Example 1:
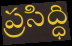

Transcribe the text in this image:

ప్రసిద్ధి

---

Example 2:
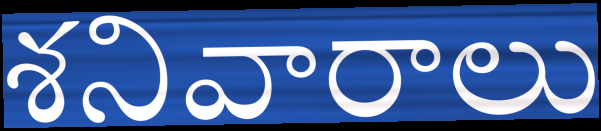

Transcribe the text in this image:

శనివారాలు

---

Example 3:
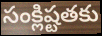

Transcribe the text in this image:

సంక్లిష్టతకు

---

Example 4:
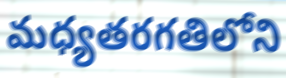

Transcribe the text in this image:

మధ్యతరగతిలోని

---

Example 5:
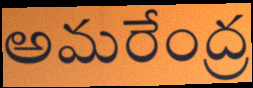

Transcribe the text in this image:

అమరేంద్ర